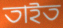
তাইত